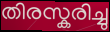
തിരസ്കരിച്ചു